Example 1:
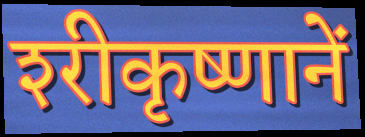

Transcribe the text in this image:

श्रीकृष्णानें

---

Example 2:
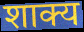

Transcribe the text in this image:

शाक्य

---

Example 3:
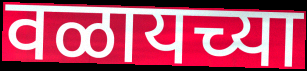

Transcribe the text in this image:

वळायच्या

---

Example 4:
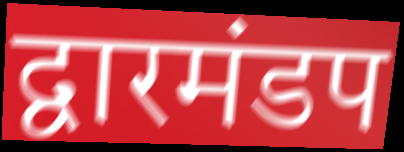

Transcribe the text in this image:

द्वारमंडप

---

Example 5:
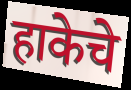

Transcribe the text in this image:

हाकेचे